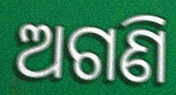
ଅଗଣି